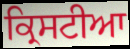
ਕ੍ਰਿਸਟੀਆ